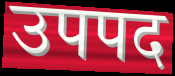
उपपद